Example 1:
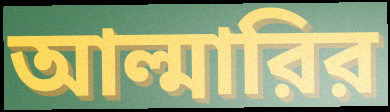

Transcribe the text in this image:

আল্মারির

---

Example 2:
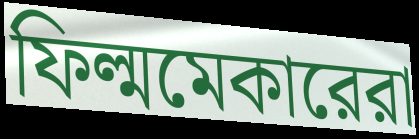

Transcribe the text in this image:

ফিল্মমেকারেরা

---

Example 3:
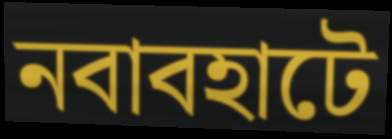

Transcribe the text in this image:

নবাবহাটে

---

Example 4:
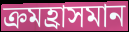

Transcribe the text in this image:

ক্রমহ্রাসমান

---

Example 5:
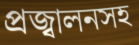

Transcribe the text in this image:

প্রজ্বালনসহ